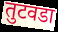
तुटवडा